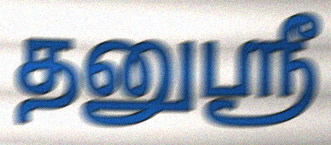
தனுஸ்ரீ